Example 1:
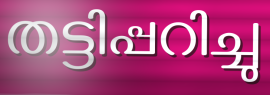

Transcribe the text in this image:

തട്ടിപ്പറിച്ചു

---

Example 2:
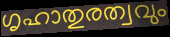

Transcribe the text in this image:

ഗൃഹാതുരത്വവും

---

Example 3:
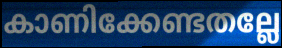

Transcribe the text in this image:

കാണിക്കേണ്ടതല്ലേ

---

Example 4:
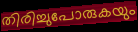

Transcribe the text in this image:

തിരിച്ചുപോരുകയും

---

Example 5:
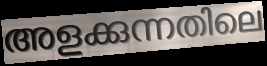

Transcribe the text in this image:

അളക്കുന്നതിലെ